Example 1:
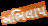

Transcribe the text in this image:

અભિલાપ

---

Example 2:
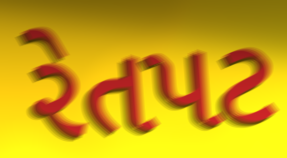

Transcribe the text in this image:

રેતપટ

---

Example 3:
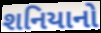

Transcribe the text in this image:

શનિયાનો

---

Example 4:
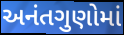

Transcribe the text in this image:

અનંતગુણોમાં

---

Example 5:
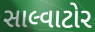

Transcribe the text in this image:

સાલ્વાટોર